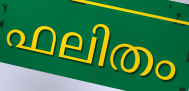
ഫലിതം